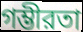
গম্ভীরতা